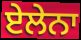
ਏਲੇਨਾ